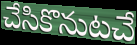
చేసికొనుటచే